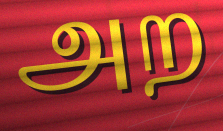
அற